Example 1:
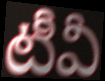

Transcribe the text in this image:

టీవీ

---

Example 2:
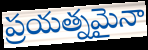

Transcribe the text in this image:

ప్రయత్నమైనా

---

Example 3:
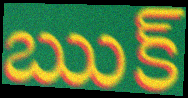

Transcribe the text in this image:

ఋక్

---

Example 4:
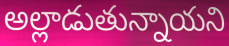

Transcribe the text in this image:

అల్లాడుతున్నాయని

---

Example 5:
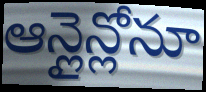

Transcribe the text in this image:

ఆన్లైన్లోనూ